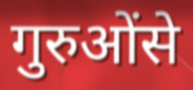
गुरुओंसे